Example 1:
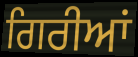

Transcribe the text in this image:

ਗਿਰੀਆਂ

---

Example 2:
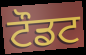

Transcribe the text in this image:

ਟੌਡਟ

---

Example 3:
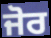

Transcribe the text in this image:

ਜੋਰ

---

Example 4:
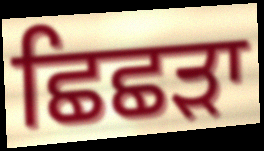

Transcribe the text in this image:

ਛਿਛੜਾ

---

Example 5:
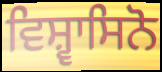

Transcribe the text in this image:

ਵਿਸ਼੍ਵਾਸਿਨੋ